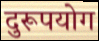
दुरूपयोग